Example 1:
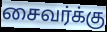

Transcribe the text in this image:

சைவர்க்கு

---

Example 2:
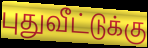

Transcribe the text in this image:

புதுவீட்டுக்கு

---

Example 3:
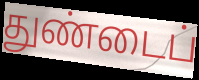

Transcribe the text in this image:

துண்டைப்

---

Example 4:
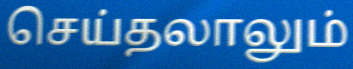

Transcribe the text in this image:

செய்தலாலும்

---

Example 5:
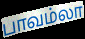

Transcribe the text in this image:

பாவம்லா